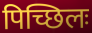
पिच्छिलः